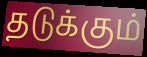
தடுக்கும்